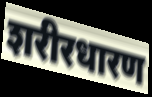
शरीरधारण